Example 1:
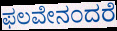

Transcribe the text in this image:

ಫಲವೇನಂದರೆ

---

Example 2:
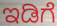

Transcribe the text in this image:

ಇಡಿಗೆ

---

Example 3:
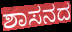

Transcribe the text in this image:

ಶಾಸನದ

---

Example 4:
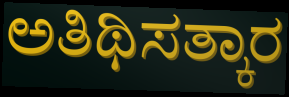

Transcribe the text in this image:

ಅತಿಥಿಸತ್ಕಾರ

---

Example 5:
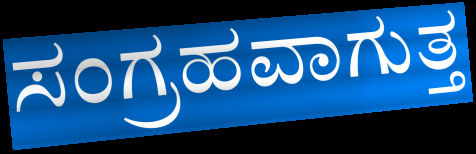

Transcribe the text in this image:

ಸಂಗ್ರಹವಾಗುತ್ತ